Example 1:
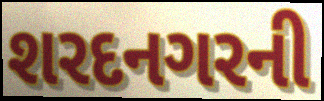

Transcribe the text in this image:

શરદનગરની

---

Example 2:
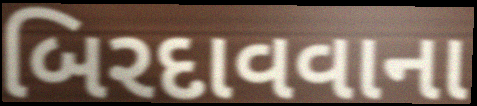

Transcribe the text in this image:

બિરદાવવાના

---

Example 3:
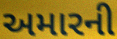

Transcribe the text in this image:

અમારની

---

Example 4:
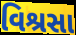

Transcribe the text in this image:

વિશ્રસા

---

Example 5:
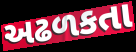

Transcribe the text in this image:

અઢળકતા